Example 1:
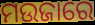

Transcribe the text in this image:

ମଉଜାରେ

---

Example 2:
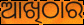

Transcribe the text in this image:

ଆଖିଠାର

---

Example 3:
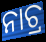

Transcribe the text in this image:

ନାଚ୍ର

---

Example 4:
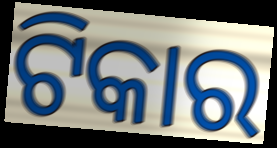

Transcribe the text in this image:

ଟିକାର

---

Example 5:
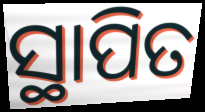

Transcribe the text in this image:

ସ୍ଥାପିତ